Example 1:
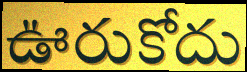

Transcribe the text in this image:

ఊరుకోదు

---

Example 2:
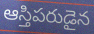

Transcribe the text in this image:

ఆస్తిపరుడైన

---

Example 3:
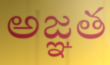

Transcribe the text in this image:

అజ్ఞత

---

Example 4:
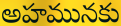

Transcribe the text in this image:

అహమునకు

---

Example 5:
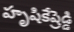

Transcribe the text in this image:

హృషికేష్రెడ్డి